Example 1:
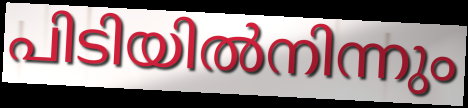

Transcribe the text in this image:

പിടിയിൽനിന്നും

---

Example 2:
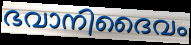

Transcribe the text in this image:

ഭവാനിദൈവം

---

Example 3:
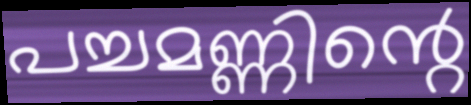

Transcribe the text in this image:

പച്ചമണ്ണിന്റെ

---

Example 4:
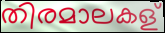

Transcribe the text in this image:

തിരമാലകള്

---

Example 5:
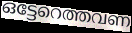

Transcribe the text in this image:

ഒട്ടേറെത്തവണ